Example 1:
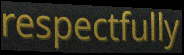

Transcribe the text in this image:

respectfully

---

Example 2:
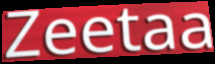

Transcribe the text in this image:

Zeetaa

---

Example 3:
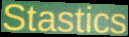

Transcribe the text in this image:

Stastics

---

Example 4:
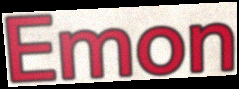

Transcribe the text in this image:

Emon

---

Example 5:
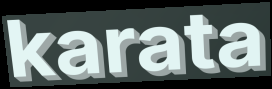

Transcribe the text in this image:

karata